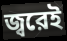
জ্বরেই